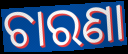
ଚାରଣା